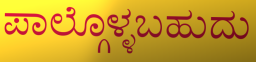
ಪಾಲ್ಗೊಳ್ಳಬಹುದು